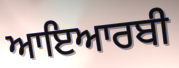
ਆਇਆਰਬੀ